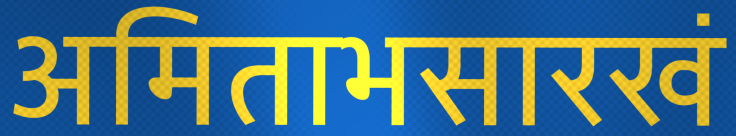
अमिताभसारखं